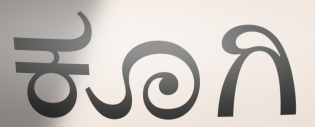
ಕೂಗಿ